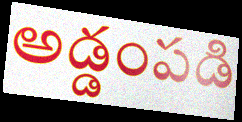
అడ్డంపడి